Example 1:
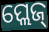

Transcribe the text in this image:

ପ୍ଲେଜ୍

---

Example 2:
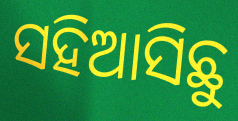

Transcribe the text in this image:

ସହିଆସିଛୁ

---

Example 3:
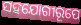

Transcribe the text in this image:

ସହଯୋଗୀରୂପେ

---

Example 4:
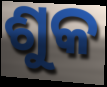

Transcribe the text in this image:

ଶୁକ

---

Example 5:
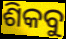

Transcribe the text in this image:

ଶିକବୁ